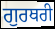
ਗੁਰਥਰੀ